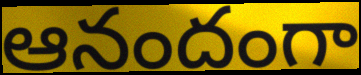
ఆనందంగా